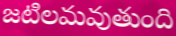
జటిలమవుతుంది